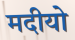
मदीयो